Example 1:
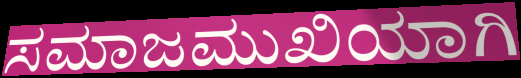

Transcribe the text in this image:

ಸಮಾಜಮುಖಿಯಾಗಿ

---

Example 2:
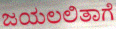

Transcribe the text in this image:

ಜಯಲಲಿತಾಗೆ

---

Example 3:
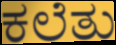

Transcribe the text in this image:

ಕಲೆತು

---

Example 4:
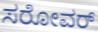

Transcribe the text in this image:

ಸರೋವರ್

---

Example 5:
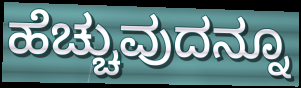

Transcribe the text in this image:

ಹೆಚ್ಚುವುದನ್ನೂ